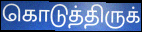
கொடுத்திருக்